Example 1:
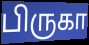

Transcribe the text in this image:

பிருகா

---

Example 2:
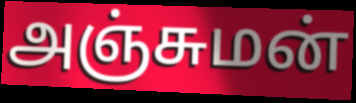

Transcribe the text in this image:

அஞ்சுமன்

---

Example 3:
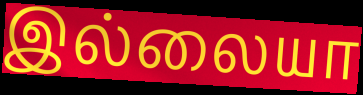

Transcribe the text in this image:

இல்லையா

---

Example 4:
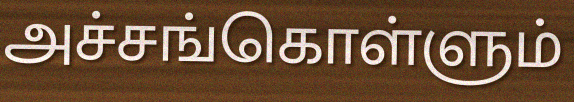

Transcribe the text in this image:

அச்சங்கொள்ளும்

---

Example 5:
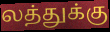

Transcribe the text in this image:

லத்துக்கு